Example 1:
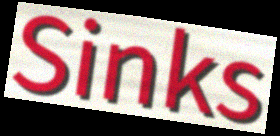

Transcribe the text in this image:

Sinks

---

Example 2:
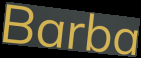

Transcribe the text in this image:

Barba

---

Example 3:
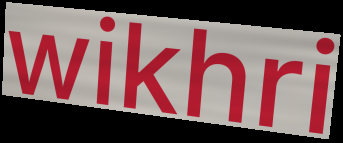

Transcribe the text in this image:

wikhri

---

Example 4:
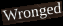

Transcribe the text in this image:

Wronged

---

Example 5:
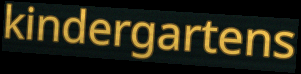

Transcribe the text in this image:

kindergartens